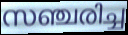
സഞ്ചരിച്ച